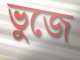
ভুজে